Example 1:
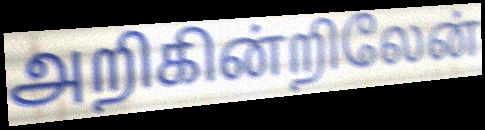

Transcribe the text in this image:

அறிகின்றிலேன்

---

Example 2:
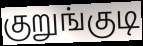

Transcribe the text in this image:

குறுங்குடி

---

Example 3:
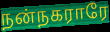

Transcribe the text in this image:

நன்நகராரே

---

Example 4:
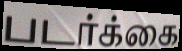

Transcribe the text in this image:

படர்க்கை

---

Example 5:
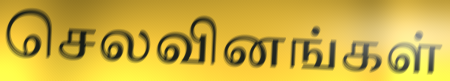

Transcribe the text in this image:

செலவினங்கள்